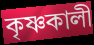
কৃষ্ণকালী